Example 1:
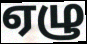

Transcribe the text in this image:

ஏழு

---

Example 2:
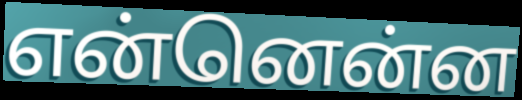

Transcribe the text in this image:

என்னென்ன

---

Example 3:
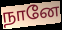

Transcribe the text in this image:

நானே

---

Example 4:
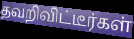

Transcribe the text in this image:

தவறிவிட்டீர்கள்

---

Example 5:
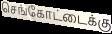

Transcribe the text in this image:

செங்கோட்டைக்கு